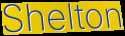
Shelton